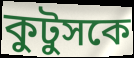
কুটুসকে